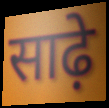
साढ़े